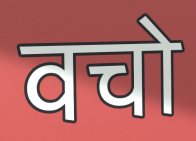
वचो